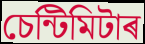
চেন্টিমিটাৰ